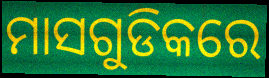
ମାସଗୁଡିକରେ